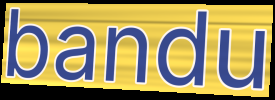
bandu